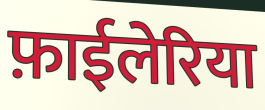
फ़ाईलेरिया